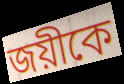
জয়ীকে